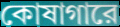
কোষাগারে